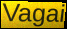
Vagai